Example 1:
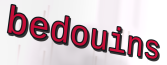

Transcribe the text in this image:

bedouins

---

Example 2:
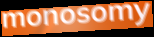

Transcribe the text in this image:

monosomy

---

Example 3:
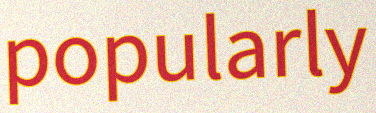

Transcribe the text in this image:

popularly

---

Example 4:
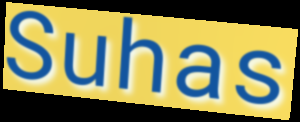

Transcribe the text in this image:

Suhas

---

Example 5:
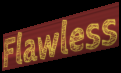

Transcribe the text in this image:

Flawless